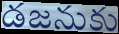
డజనుకు